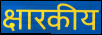
क्षारकीय